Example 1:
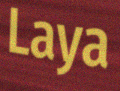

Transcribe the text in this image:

Laya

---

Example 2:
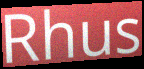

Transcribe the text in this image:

Rhus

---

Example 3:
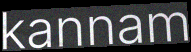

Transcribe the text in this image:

kannam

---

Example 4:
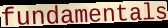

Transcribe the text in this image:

fundamentals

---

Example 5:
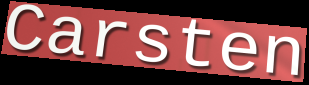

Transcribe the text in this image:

Carsten